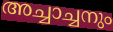
അച്ചാച്ചനും